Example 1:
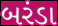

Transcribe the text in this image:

બરંડા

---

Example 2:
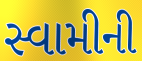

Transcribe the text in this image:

સ્વામીની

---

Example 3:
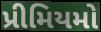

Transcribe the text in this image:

પ્રીમિયમો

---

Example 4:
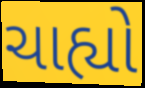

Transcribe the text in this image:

ચાહ્યો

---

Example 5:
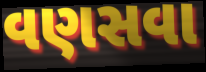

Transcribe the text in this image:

વણસવા